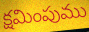
క్షమింపుము